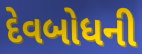
દેવબોધની